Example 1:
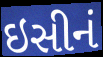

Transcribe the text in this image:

ઇસીનં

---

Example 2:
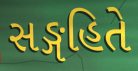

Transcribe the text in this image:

સઙ્ગહિતે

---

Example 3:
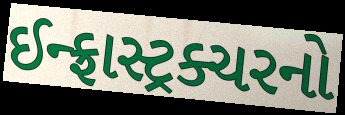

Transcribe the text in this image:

ઈન્ફ્રાસ્ટ્રક્ચરનો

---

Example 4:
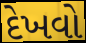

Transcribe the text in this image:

દેખવો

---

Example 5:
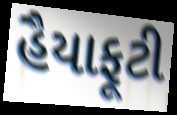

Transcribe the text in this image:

હૈયાફૂટી